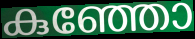
കുഞ്ഞോ